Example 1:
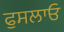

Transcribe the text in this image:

ਫੁਸਲਾਓ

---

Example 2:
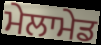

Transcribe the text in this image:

ਮੇਲਾਮੇਡ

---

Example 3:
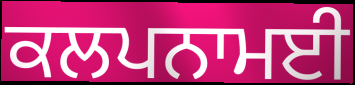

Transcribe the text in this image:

ਕਲਪਨਾਮਈ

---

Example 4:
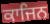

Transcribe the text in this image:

ਕਾਜਿਨ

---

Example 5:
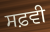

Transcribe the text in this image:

ਸਫ਼ਵੀ